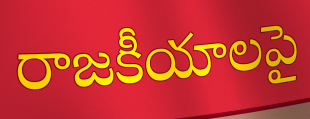
రాజకీయాలపై